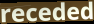
receded